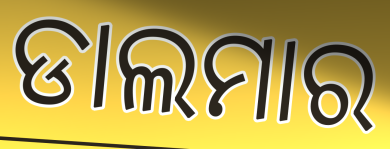
ଡାଲମାର